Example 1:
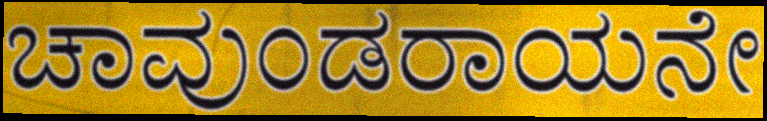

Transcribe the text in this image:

ಚಾವುಂಡರಾಯನೇ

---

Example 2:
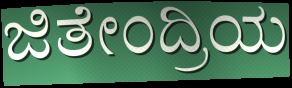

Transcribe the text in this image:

ಜಿತೇಂದ್ರಿಯ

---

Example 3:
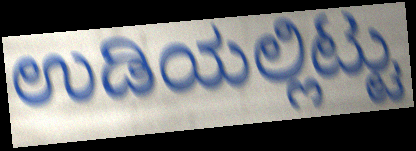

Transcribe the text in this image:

ಉಡಿಯಲ್ಲಿಟ್ಟು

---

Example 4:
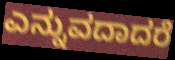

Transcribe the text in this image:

ಎನ್ನುವದಾದರೆ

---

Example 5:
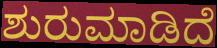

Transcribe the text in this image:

ಶುರುಮಾಡಿದೆ